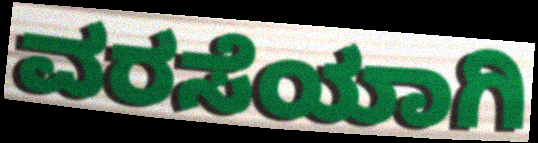
ವರಸೆಯಾಗಿ